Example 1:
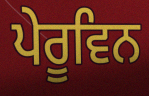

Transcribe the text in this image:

ਪੇਰੂਵਿਨ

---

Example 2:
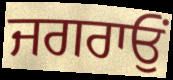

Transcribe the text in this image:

ਜਗਰਾਓੁਂ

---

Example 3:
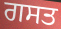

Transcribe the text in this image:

ਗਸਤ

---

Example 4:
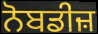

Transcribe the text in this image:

ਨੋਬਡੀਜ਼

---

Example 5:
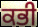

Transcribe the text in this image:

ਕਭੀ